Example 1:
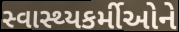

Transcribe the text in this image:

સ્વાસ્થ્યકર્મીઓને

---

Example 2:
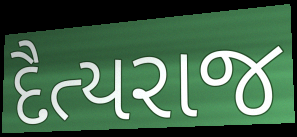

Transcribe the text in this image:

દૈત્યરાજ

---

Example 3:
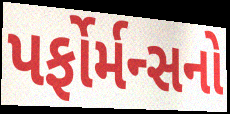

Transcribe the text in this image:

પર્ફોર્મન્સનો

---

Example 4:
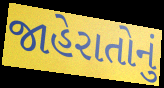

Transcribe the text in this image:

જાહેરાતોનું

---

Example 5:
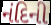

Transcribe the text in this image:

નંદિની